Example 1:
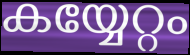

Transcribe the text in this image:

കയ്യേറ്റം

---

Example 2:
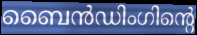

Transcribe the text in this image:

ബൈൻഡിംഗിന്റെ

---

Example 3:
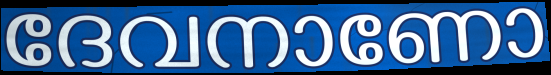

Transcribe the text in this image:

ദേവനാണോ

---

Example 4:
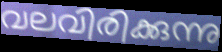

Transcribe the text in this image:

വലവിരിക്കുന്നു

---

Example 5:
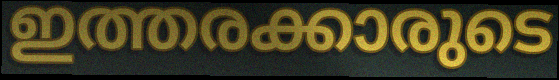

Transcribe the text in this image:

ഇത്തരക്കാരുടെ